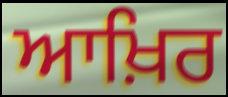
ਆਖ਼ਿਰ